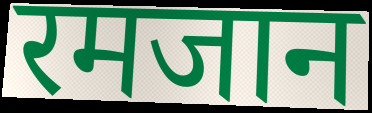
रमजान